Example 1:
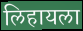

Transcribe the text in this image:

लिहायला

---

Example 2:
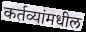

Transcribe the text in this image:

कर्तव्यांमधील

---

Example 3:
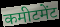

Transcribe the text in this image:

कमीटमेंट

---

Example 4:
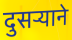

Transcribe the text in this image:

दुसऱ्याने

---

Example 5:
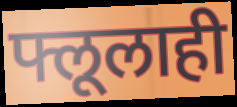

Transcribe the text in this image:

फ्लूलाही